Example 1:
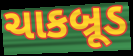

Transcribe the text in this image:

ચાકબ્રૂડ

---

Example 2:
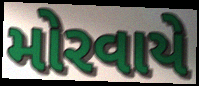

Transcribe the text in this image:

મોરવાયે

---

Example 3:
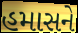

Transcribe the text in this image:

હમાસને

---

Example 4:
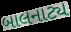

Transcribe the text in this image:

બાલનાટ્ય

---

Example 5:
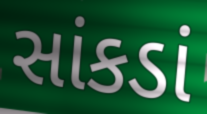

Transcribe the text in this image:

સાંકડાં